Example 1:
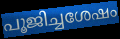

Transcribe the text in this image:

പൂജിച്ചശേഷം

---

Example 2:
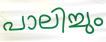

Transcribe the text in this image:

പാലിച്ചും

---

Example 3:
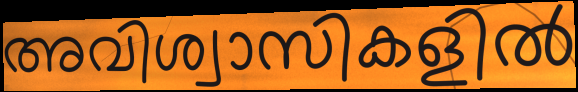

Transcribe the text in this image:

അവിശ്വാസികളിൽ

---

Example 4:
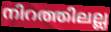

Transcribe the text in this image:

നിറത്തിലല്ല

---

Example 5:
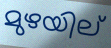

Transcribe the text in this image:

മുഴയില്